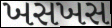
ખસખસ